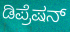
ಡಿಪ್ರೆಷನ್